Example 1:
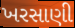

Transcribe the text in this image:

ખરસાણી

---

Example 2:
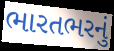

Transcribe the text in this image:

ભારતભરનું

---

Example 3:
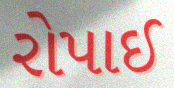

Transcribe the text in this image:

રોપાઈ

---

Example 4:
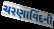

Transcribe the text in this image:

ચરણાવિંદની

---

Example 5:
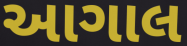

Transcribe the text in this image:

આગાલ